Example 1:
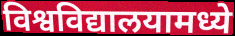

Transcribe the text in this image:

विश्वविद्यालयामध्ये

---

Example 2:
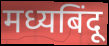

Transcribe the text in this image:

मध्यबिंदू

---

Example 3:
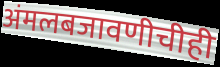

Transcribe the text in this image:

अंमलबजावणीचीही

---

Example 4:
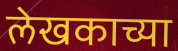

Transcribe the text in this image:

लेखकाच्या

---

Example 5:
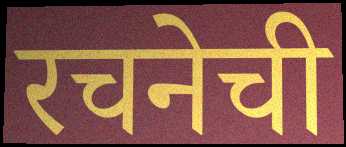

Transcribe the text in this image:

रचनेची